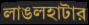
লাঙলহাটার